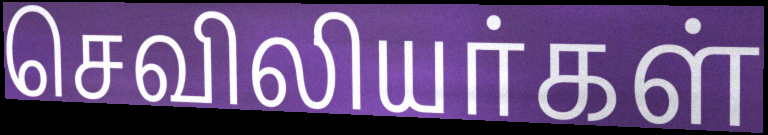
செவிலியர்கள்